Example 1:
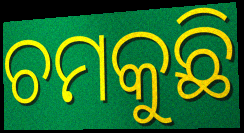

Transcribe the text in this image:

ଚମକୁଛି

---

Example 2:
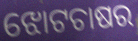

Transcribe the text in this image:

ଝୋଟଚାଷର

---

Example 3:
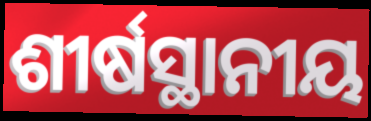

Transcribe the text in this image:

ଶୀର୍ଷସ୍ଥାନୀୟ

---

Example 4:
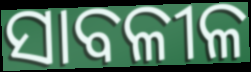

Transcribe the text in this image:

ସାବଳୀଳ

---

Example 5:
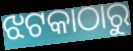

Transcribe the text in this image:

ଝଟକାଠାରୁ